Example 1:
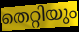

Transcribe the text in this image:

തെറ്റിയും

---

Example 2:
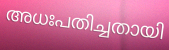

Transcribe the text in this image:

അധഃപതിച്ചതായി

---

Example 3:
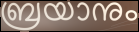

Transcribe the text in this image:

ബ്രയാനും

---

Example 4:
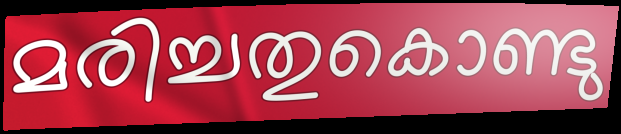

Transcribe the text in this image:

മരിച്ചതുകൊണ്ടു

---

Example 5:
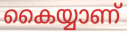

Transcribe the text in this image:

കൈയ്യാണ്